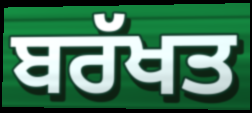
ਬਰੱਖਤ